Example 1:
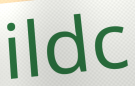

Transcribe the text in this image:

ildc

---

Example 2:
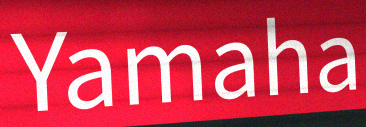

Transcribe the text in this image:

Yamaha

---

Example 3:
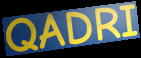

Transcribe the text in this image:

QADRI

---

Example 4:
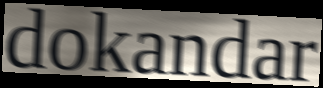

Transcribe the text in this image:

dokandar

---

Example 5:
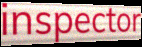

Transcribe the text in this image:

inspector